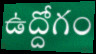
ఉద్దోగం